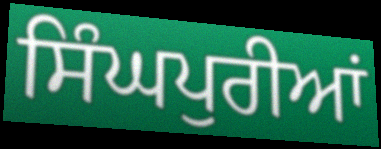
ਸਿੰਘਪੁਰੀਆਂ